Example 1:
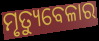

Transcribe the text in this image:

ମୃତ୍ୟୁବେଳାର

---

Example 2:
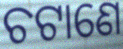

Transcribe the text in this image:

ଚଟାଣେ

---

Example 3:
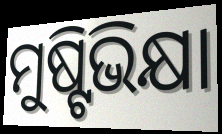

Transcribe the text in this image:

ମୁଷ୍ଟିଭିକ୍ଷା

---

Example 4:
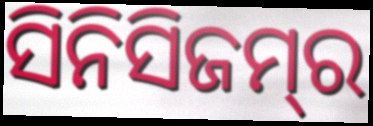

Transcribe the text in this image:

ସିନିସିଜମ୍‌ର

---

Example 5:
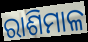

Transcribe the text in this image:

ରାଶିମାଳ